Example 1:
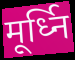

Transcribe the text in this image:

मूर्ध्नि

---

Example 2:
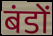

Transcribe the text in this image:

बंडों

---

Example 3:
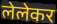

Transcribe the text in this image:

लेलेकर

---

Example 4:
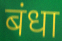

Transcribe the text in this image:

बंधा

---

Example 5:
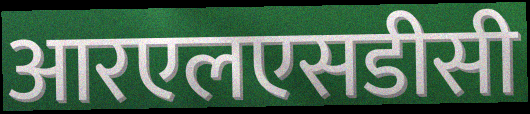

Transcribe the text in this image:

आरएलएसडीसी